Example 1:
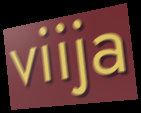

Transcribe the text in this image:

viija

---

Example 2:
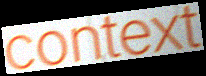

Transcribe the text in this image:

context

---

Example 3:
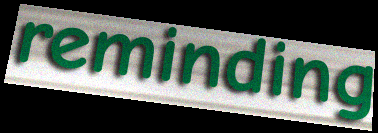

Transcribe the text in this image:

reminding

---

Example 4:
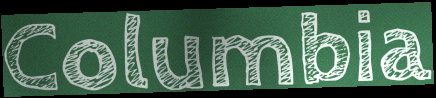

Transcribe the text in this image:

Columbia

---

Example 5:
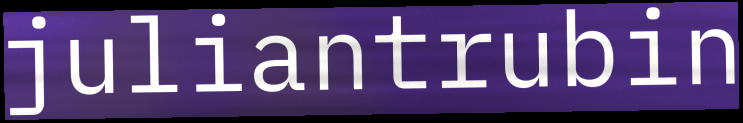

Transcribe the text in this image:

juliantrubin